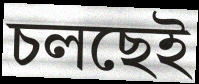
চলছেই